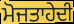
ਮੋਜਤਾਹੇਦੀ